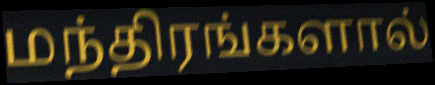
மந்திரங்களால்